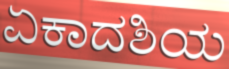
ಏಕಾದಶಿಯ